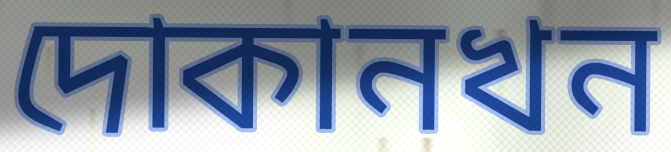
দোকানখন